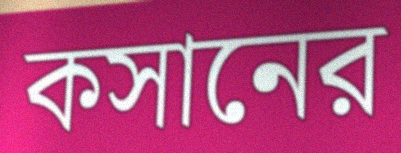
কসানের